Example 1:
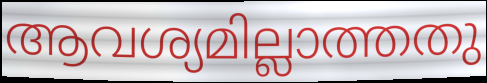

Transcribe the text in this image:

ആവശ്യമില്ലാത്തതു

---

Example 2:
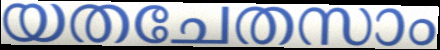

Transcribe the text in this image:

യതചേതസാം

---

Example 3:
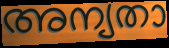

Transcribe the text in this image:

അന്യതാ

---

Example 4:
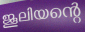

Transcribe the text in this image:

ജൂലിയന്റെ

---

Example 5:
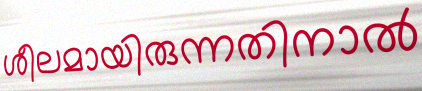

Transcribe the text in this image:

ശീലമായിരുന്നതിനാൽ